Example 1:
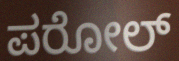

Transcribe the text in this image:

ಪರೋಲ್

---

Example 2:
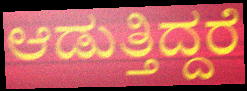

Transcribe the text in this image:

ಆಡುತ್ತಿದ್ದರೆ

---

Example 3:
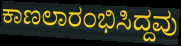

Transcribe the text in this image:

ಕಾಣಲಾರಂಭಿಸಿದ್ದವು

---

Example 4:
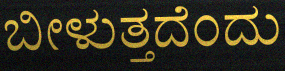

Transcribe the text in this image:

ಬೀಳುತ್ತದೆಂದು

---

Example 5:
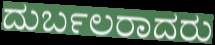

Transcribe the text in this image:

ದುರ್ಬಲರಾದರು